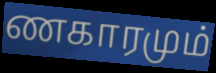
ணகாரமும்